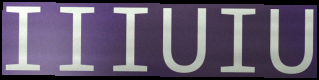
IIIUIU